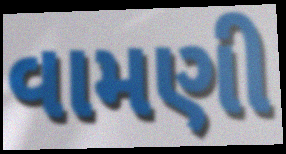
વામણી